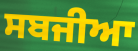
ਸਬਜੀਆ